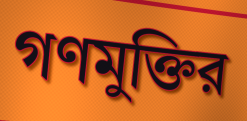
গণমুক্তির